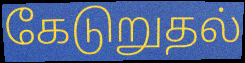
கேடுறுதல்